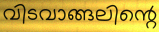
വിടവാങ്ങലിന്റെ